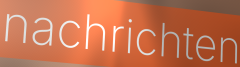
nachrichten